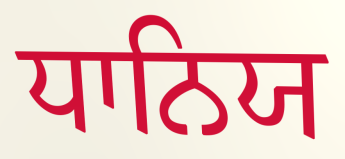
ਧਾਨਿਯ